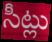
సీట్లు